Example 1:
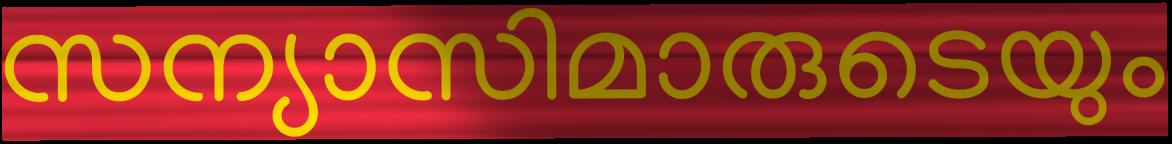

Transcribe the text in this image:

സന്യാസിമാരുടെയും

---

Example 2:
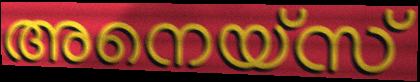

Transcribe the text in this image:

അനെയ്സ്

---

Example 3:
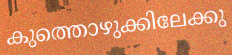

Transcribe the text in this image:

കുത്തൊഴുക്കിലേക്കു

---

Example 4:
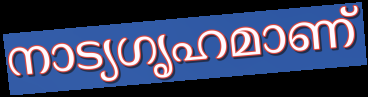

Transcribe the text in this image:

നാട്യഗൃഹമാണ്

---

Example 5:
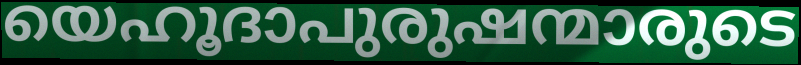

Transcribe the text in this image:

യെഹൂദാപുരുഷന്മാരുടെ